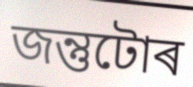
জন্তুটোৰ